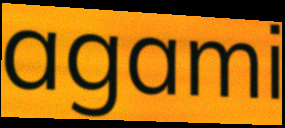
agami